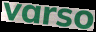
varso